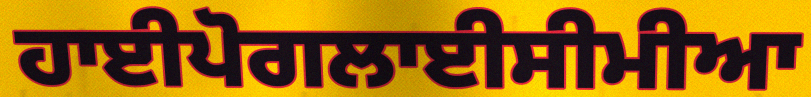
ਹਾਈਪੋਗਲਾਈਸੀਮੀਆ